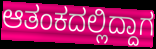
ಆತಂಕದಲ್ಲಿದ್ದಾಗ